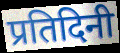
प्रतिदिनी